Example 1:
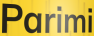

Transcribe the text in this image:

Parimi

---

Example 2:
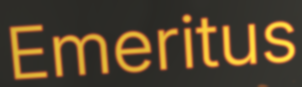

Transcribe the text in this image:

Emeritus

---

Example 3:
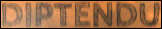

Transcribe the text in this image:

DIPTENDU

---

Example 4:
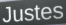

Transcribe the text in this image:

Justes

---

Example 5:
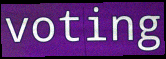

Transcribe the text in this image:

voting